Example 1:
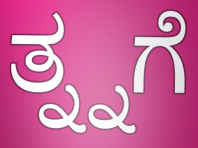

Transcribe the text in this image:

ತ್ನ್ನಗೆ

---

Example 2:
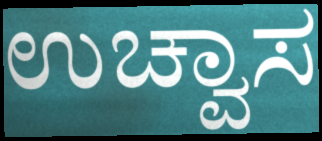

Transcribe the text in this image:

ಉಚ್ವಾಸ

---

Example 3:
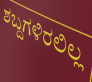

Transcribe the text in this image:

ಶಬ್ದಗಳಿರಲಿಲ್ಲ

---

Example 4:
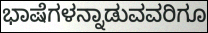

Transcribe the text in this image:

ಭಾಷೆಗಳನ್ನಾಡುವವರಿಗೂ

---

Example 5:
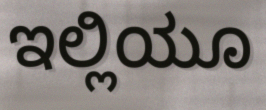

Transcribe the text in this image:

ಇಲ್ಲಿಯೂ